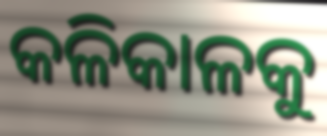
କଳିକାଳକୁ